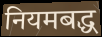
नियमबद्ध